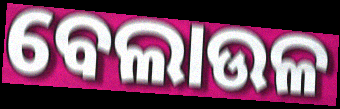
ବେଲାଉଳ